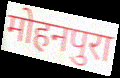
मोहनपुरा